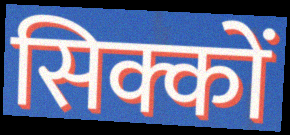
सिक्कों